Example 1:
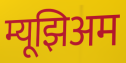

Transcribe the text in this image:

म्यूझिअम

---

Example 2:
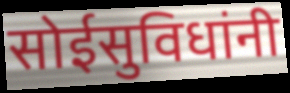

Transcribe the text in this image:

सोईसुविधांनी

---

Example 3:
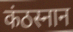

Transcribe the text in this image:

कंठस्नान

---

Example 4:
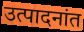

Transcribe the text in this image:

उत्पादनांत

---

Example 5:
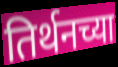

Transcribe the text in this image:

तिर्थनच्या